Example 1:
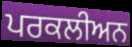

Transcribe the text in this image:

ਪਰਕਲੀਅਨ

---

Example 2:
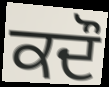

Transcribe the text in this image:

ਕਦੌ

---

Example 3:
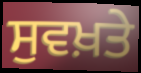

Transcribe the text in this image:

ਸੁਵਖ਼ਤੇ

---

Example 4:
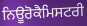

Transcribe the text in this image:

ਨਿਊਰੋਕੈਮਿਸਟਰੀ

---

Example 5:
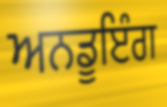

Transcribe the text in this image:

ਅਨਡੂਇੰਗ